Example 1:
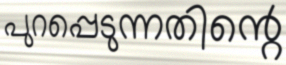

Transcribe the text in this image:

പുറപ്പെടുന്നതിന്റെ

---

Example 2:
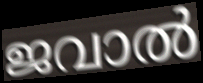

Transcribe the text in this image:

ജവാൽ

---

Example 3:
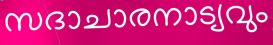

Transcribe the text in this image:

സദാചാരനാട്യവും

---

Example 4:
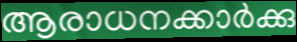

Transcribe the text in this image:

ആരാധനക്കാർക്കു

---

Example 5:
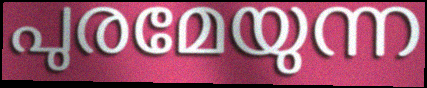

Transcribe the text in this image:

പുരമേയുന്ന